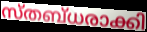
സ്തബ്ധരാക്കി